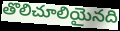
తొలిచూలియైనది